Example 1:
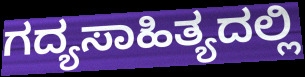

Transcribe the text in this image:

ಗದ್ಯಸಾಹಿತ್ಯದಲ್ಲಿ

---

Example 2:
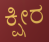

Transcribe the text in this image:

ಕ್ಷೀರ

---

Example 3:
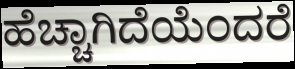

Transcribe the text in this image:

ಹೆಚ್ಚಾಗಿದೆಯೆಂದರೆ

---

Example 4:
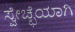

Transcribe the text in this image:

ಸ್ವೇಚ್ಛೆಯಾಗಿ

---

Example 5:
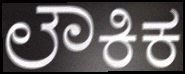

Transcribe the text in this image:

ಲೌಕಿಕ